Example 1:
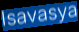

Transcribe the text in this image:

Isavasya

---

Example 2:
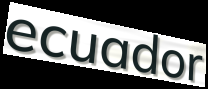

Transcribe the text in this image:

ecuador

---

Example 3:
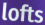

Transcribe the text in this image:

lofts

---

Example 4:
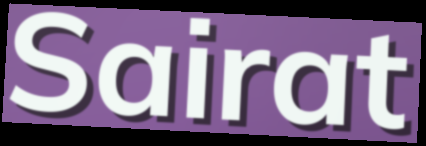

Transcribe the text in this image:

Sairat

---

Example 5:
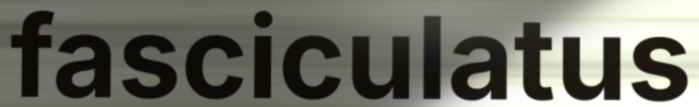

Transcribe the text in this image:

fasciculatus